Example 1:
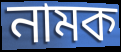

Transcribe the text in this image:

নামক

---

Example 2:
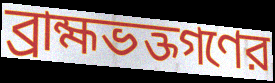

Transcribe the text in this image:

ব্রাহ্মভক্তগণের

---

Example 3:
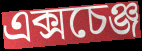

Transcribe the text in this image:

এক্সচেঞ্জ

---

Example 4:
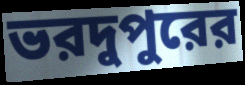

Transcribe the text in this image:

ভরদুপুরের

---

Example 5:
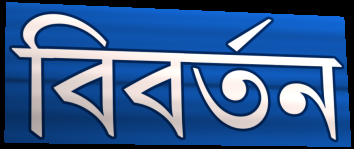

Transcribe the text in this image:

বিবর্তন